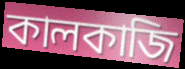
কালকাজি